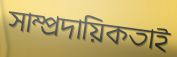
সাম্প্রদায়িকতাই